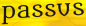
passus